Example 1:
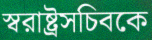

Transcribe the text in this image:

স্বরাষ্ট্রসচিবকে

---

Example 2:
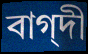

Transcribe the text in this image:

বাগ্‌দী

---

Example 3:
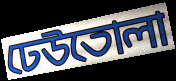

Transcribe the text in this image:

ঢেউতোলা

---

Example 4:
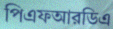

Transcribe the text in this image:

পিএফআরডিএ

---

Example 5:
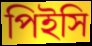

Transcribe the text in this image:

পিইসি